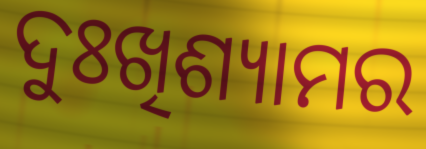
ଦୁଃଖିଶ୍ୟାମର